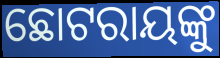
ଛୋଟରାୟଙ୍କୁ